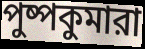
পুষ্পকুমারা